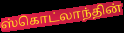
ஸ்கொட்லாந்தின்